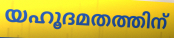
യഹൂദമതത്തിന്